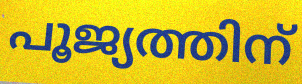
പൂജ്യത്തിന്